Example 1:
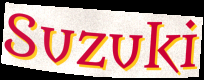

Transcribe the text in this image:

Suzuki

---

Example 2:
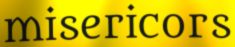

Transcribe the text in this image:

misericors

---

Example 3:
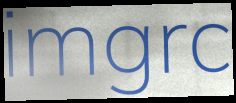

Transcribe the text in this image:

imgrc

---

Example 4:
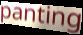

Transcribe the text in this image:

panting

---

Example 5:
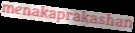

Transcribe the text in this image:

menakaprakashan